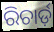
ରିଚାର୍ଡ଼